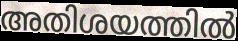
അതിശയത്തിൽ